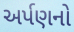
અર્પણનો